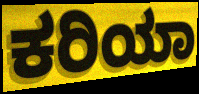
ಕರಿಯಾ